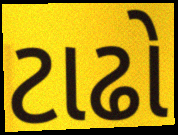
ટાઢો